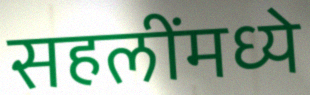
सहलींमध्ये